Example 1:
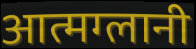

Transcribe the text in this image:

आत्मग्लानी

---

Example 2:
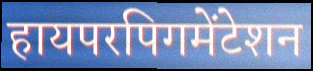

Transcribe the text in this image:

हायपरपिगमेंटेशन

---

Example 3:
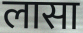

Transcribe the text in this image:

लासा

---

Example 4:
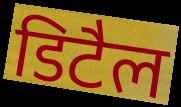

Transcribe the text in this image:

डिटैल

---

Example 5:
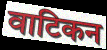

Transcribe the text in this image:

वाटिकन